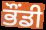
ਭੌਂਡੀ